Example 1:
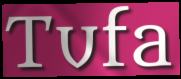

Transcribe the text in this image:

Tufa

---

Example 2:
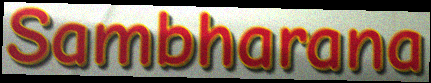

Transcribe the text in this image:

Sambharana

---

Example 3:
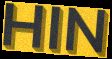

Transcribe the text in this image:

HIN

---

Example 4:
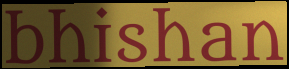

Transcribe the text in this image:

bhishan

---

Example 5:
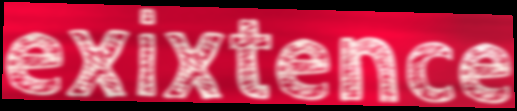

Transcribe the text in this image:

exixtence